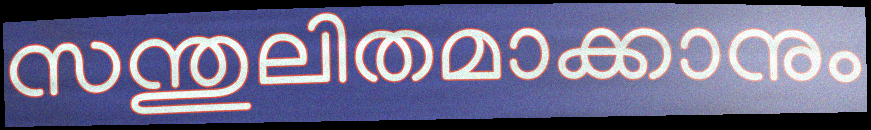
സന്തുലിതമാക്കാനും